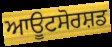
ਆਊਟਸੋਰਸ਼ਡ